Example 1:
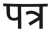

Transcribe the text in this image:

पत्र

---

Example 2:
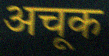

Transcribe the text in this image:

अचूक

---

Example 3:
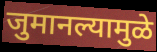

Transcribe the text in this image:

जुमानल्यामुळे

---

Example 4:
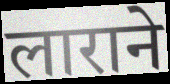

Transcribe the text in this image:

लाराने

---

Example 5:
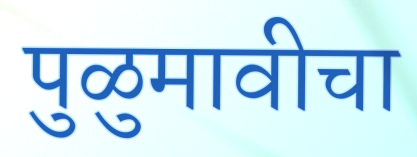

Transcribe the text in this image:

पुळुमावीचा